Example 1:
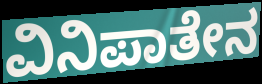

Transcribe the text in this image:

ವಿನಿಪಾತೇನ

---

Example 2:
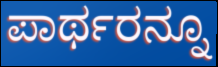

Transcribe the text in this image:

ಪಾರ್ಥರನ್ನೂ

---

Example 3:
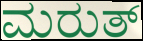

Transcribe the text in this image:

ಮರುತ್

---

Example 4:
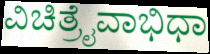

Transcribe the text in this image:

ವಿಚಿತ್ರೈವಾಭಿಧಾ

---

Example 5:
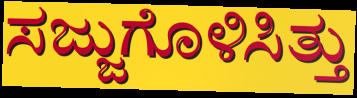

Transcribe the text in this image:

ಸಜ್ಜುಗೊಳಿಸಿತ್ತು